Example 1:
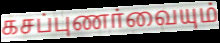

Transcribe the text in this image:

கசப்புணர்வையும்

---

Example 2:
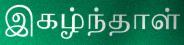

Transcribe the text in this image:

இகழ்ந்தாள்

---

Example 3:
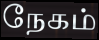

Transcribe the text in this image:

நேகம்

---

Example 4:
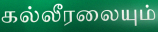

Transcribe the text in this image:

கல்லீரலையும்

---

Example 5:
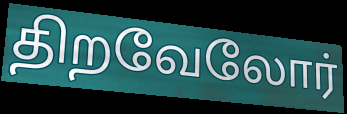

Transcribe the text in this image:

திறவேலோர்